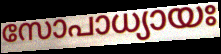
സോപാധ്യായഃ